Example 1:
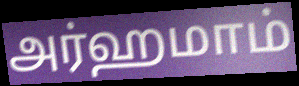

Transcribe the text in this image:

அர்ஹமாம்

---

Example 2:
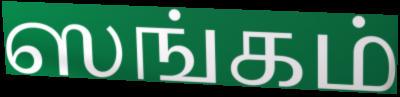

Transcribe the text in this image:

ஸங்கம்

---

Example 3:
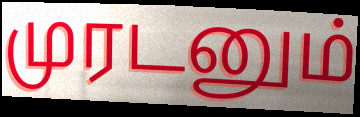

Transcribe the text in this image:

முரடனும்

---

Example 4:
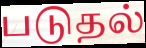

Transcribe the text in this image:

படுதல்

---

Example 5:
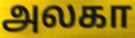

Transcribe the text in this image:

அலகா